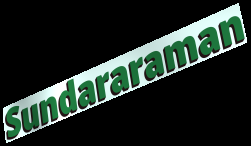
Sundararaman